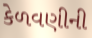
કેળવણીની